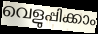
വെളുപ്പിക്കാം